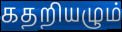
கதறியழும்